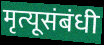
मृत्यूसंबंधी